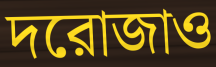
দরোজাও